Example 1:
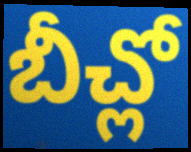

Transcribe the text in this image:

బీచ్లో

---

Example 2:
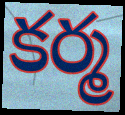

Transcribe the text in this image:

కర్మ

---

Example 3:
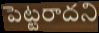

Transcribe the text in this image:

పెట్టరాదని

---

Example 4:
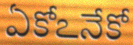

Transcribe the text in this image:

ఏకోఽనేకో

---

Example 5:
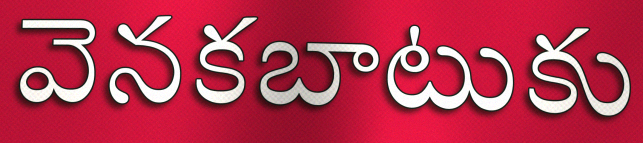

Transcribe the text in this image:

వెనకబాటుకు